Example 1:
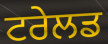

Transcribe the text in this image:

ਟਰੇਲਡ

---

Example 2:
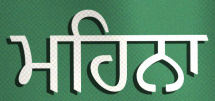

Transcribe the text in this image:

ਮਹਿਨਾ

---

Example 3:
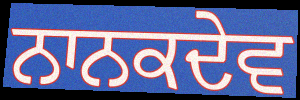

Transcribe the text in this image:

ਨਾਨਕਦੇਵ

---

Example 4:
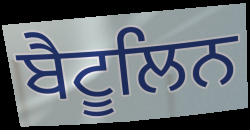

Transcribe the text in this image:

ਬੈਟੂਲਿਨ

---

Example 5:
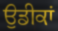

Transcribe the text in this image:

ਉਡੀਕਾਂ